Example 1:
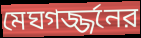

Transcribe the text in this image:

মেঘগর্জ্জনের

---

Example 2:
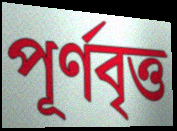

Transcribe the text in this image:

পূর্ণবৃত্ত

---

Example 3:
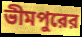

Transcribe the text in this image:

ভীমপুরের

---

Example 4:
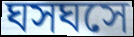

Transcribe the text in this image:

ঘসঘসে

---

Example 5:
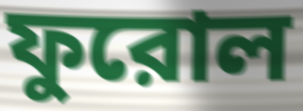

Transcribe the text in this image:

ফুরোল